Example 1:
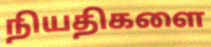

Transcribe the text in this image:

நியதிகளை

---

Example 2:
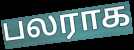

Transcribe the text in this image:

பலராக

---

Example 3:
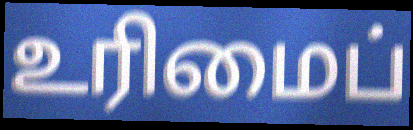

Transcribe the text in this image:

உரிமைப்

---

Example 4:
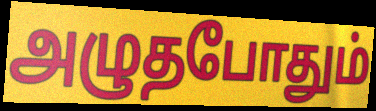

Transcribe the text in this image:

அழுதபோதும்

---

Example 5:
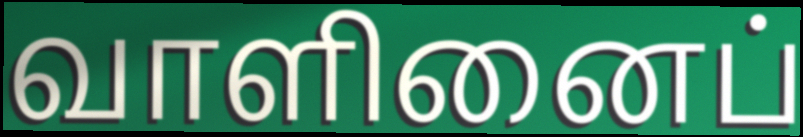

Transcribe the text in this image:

வாளினைப்